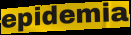
epidemia